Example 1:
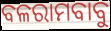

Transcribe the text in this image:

ବଳରାମବାବୁ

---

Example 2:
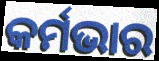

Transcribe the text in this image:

କର୍ମଭାର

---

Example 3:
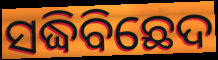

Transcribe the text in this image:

ସଦ୍ଧିବିଛେଦ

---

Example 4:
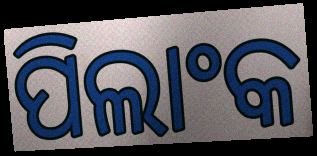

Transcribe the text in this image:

ପିଲାଂକ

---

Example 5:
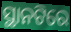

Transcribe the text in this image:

ସ୍ଥାନଟିରେ